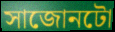
সাজোনটো